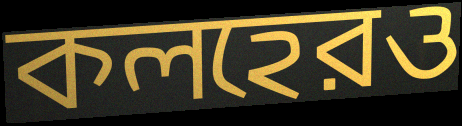
কলহেরও